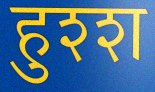
हुश्श